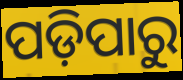
ପଡ଼ିପାରୁ